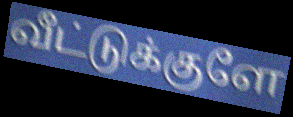
வீட்டுக்குளே